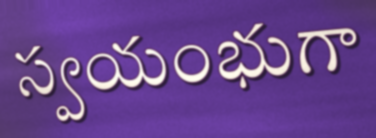
స్వయంభుగా